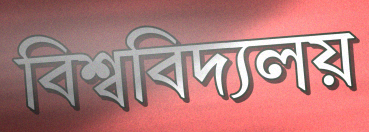
বিশ্ববিদ্যলয়